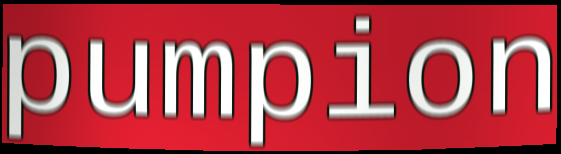
pumpion